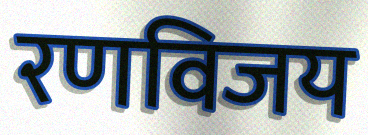
रणविजय